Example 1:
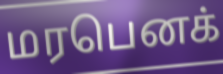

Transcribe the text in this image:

மரபெனக்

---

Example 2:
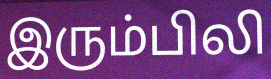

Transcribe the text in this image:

இரும்பிலி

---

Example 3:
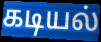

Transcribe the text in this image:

கடியல்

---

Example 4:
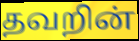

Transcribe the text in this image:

தவறின்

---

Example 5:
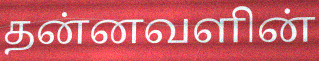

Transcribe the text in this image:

தன்னவளின்